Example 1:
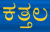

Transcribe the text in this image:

ಕತ್ತಲ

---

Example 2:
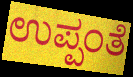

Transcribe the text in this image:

ಉಪ್ಪಂತೆ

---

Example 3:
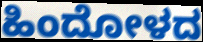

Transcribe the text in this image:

ಹಿಂದೋಳದ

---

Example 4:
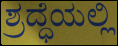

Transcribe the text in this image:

ಶ್ರದ್ಧೆಯಲ್ಲಿ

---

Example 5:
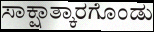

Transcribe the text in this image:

ಸಾಕ್ಷಾತ್ಕಾರಗೊಂಡು